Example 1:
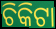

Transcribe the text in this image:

ଚିକିଟା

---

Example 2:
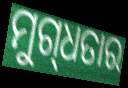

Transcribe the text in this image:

ମୁଗ୍‍ଧତାର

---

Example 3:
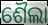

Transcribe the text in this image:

ଶୈଲା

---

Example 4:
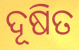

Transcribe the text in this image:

ଦୂଷିତ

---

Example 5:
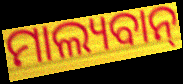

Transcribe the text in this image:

ମାଲ୍ୟବାନ୍